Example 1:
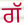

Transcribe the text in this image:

ਗੱ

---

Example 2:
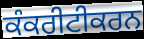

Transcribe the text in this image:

ਕੰਕਰੀਟੀਕਰਨ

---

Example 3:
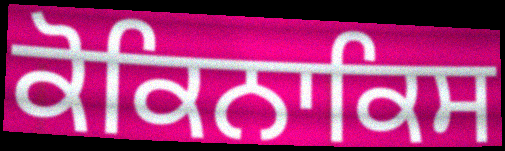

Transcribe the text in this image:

ਕੋਕਿਨਾਕਿਸ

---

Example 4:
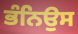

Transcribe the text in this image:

ਭੰਨਿਉਸ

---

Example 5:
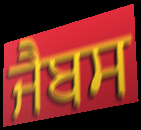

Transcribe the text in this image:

ਜੈਬਸ